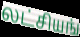
லட்சியங்